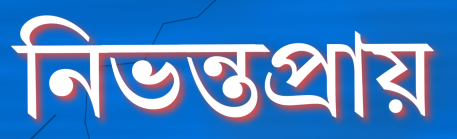
নিভন্তপ্রায়